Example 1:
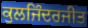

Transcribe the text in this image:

ਕੁਲਜਿੰਦਰਜੀਤ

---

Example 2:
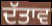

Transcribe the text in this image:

ਦੱਤਾਵ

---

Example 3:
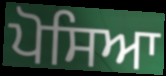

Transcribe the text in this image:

ਪੋਸਿਆ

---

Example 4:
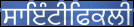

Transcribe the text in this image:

ਸਾਇੰਟੀਫਿਕਲੀ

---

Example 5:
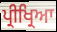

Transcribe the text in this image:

ਪ੍ਰੀਖ੍ਰਿਆ